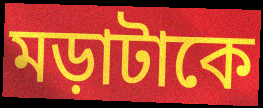
মড়াটাকে